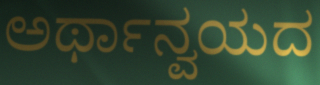
ಅರ್ಥಾನ್ವಯದ